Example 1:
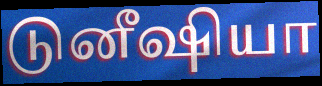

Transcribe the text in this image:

டுனீஷியா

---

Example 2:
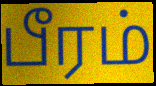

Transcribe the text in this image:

பீரம்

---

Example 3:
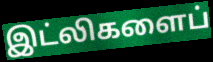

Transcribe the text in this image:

இட்லிகளைப்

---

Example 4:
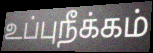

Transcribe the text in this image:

உப்புநீக்கம்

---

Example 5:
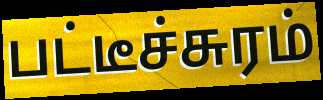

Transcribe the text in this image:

பட்டீச்சுரம்